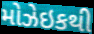
મોઝેઇકથી